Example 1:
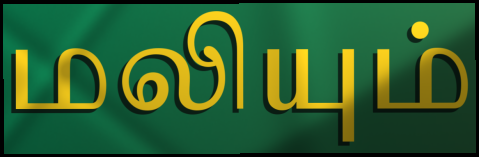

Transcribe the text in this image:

மலியும்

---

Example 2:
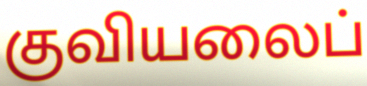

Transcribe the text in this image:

குவியலைப்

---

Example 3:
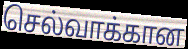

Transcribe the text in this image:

செல்வாக்கான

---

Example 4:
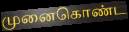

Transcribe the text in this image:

முனைகொண்ட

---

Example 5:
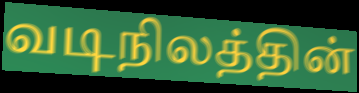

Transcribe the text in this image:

வடிநிலத்தின்